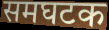
समघटक